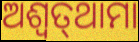
ଅଶ୍ଵତ୍‌ଥାମା